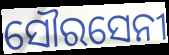
ସୌରସେନୀ